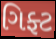
ગિફ્ટ